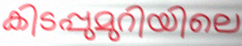
കിടപ്പുമുറിയിലെ